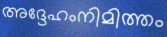
അദ്ദേഹംനിമിത്തം